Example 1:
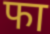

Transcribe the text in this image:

फा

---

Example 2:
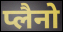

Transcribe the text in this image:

प्लैनो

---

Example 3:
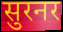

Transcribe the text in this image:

सुरनर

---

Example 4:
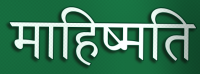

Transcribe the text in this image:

माहिष्मति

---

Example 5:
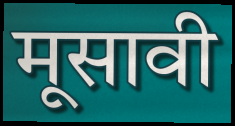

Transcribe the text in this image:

मूसावी